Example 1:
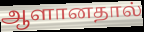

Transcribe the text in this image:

ஆளானதால்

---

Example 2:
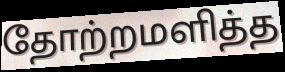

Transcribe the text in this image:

தோற்றமளித்த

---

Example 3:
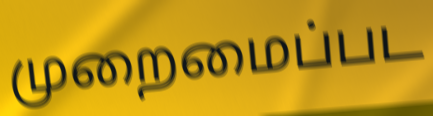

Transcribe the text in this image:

முறைமைப்பட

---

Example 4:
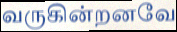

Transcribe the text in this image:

வருகின்றனவே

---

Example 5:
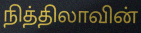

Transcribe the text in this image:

நித்திலாவின்